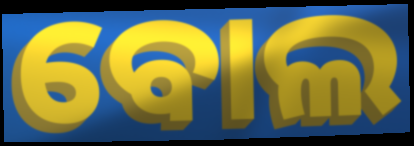
ବୋଲ